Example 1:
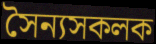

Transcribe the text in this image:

সৈন্যসকলক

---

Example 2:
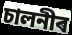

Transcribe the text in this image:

চালনীৰ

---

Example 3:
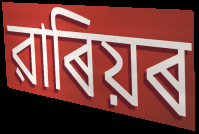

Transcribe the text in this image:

ৱাৰিয়ৰ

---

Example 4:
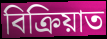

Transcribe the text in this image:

বিক্ৰিয়াত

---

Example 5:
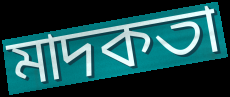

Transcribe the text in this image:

মাদকতা